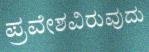
ಪ್ರವೇಶವಿರುವುದು